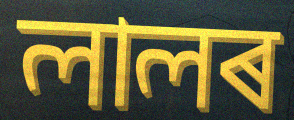
লালৰ